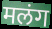
मलंग